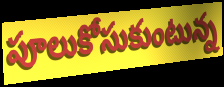
పూలుకోసుకుంటున్న